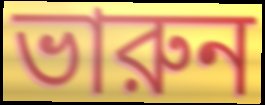
ভারুন